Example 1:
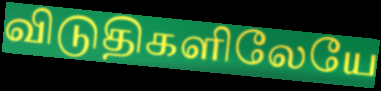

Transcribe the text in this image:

விடுதிகளிலேயே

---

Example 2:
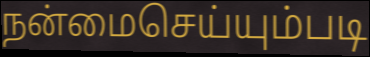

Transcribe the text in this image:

நன்மைசெய்யும்படி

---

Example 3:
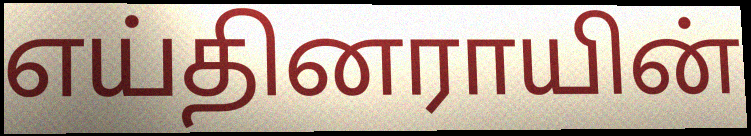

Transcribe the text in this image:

எய்தினராயின்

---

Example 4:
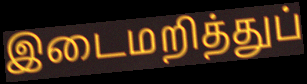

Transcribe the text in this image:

இடைமறித்துப்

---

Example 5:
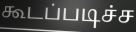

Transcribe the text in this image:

கூடப்படிச்ச